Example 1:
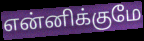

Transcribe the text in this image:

என்னிக்குமே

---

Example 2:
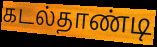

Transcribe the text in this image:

கடல்தாண்டி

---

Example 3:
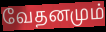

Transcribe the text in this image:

வேதனமும்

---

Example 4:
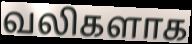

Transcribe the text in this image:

வலிகளாக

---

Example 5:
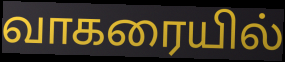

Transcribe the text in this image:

வாகரையில்